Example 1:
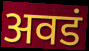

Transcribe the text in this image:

अवडं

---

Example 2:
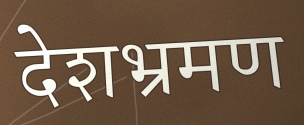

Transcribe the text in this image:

देशभ्रमण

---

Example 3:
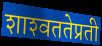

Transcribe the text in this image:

शाश्वततेप्रती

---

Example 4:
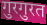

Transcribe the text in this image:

गुरगुरत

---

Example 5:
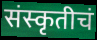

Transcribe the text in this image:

संस्कृतीचं